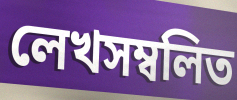
লেখসম্বলিত